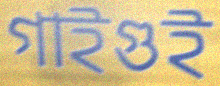
গাইগুই